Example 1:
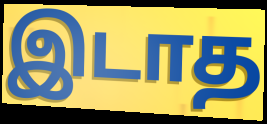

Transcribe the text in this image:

இடாத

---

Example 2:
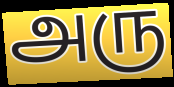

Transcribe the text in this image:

அரு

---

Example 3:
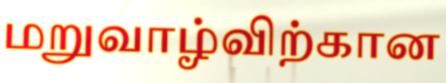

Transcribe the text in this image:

மறுவாழ்விற்கான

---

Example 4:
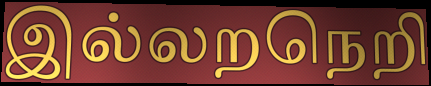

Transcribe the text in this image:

இல்லறநெறி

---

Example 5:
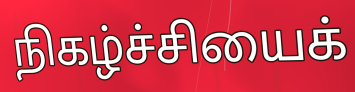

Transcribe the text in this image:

நிகழ்ச்சியைக்